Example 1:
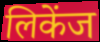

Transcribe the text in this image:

लिकेंज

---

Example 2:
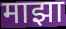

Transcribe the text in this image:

माझा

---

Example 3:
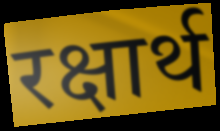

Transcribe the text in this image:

रक्षार्थ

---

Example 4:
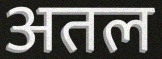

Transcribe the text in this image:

अतल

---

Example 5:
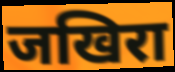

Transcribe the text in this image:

जखिरा